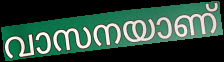
വാസനയാണ്